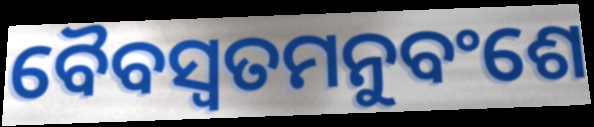
ବୈବସ୍ଵତମନୁବଂଶେ